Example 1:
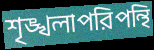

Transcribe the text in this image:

শৃঙ্খলাপরিপন্থি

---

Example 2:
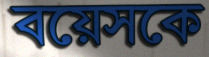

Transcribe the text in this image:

বয়েসকে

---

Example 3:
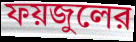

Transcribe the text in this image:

ফয়জুলের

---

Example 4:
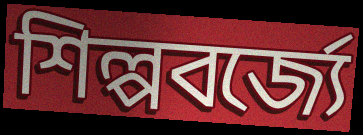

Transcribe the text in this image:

শিল্পবর্জ্যে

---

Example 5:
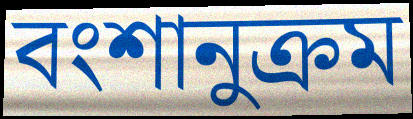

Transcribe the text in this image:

বংশানুক্রম